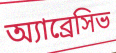
অ্যাব্রেসিভ